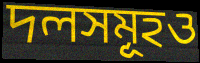
দলসমূহও